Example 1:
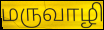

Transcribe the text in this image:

மருவாழி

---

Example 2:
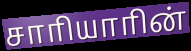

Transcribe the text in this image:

சாரியாரின்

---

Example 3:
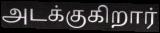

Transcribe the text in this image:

அடக்குகிறார்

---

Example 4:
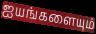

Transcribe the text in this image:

ஐயங்களையும்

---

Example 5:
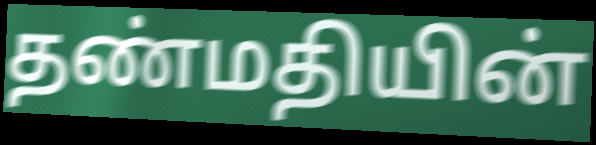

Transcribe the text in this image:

தண்மதியின்